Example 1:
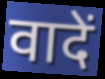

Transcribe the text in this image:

वादें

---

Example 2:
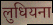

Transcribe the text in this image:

लुधियना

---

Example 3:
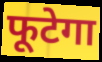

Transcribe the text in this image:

फूटेगा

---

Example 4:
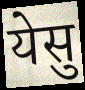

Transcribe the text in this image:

येसु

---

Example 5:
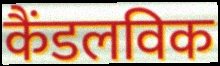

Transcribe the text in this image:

कैंडलविक